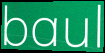
baul